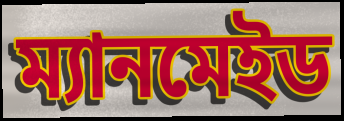
ম্যানমেইড